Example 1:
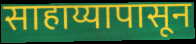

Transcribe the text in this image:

साहाय्यापासून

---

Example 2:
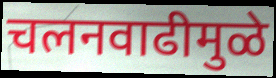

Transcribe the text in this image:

चलनवाढीमुळे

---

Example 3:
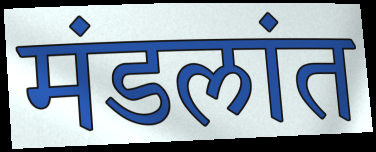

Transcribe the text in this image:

मंडलांत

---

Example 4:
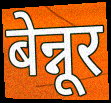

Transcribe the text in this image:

बेन्नूर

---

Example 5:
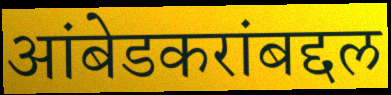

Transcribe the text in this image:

आंबेडकरांबद्दल